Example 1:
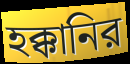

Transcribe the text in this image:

হক্কানির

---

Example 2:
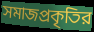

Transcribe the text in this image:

সমাজপ্রকৃতির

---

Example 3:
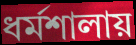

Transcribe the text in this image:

ধর্মশালায়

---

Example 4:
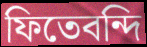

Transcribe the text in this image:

ফিতেবন্দি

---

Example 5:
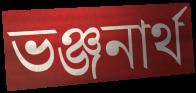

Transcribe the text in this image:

ভঞ্জনার্থ